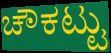
ಚೌಕಟ್ಟು